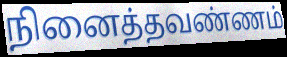
நினைத்தவண்ணம்